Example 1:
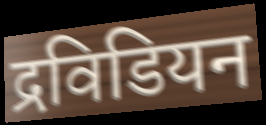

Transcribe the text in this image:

द्रविडियन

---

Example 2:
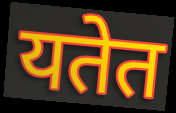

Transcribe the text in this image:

यतेत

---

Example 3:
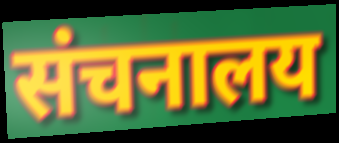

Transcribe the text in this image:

संचनालय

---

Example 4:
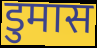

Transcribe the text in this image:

डुमास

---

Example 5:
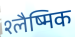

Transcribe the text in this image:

श्लैष्मिक